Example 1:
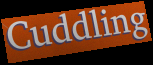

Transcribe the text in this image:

Cuddling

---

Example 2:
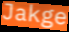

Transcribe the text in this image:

Jakge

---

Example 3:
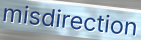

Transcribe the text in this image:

misdirection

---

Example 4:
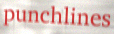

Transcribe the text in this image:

punchlines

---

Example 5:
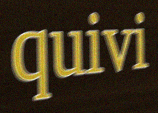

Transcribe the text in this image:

quivi